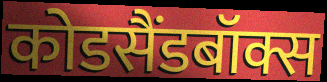
कोडसैंडबॉक्स